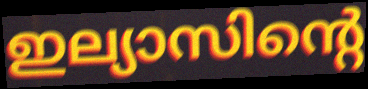
ഇല്യാസിന്റെ